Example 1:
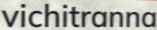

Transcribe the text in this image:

vichitranna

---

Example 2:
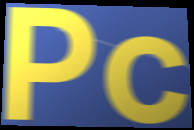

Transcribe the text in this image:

Pc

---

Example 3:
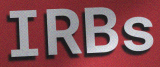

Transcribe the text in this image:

IRBs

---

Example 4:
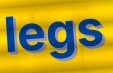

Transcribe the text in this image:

legs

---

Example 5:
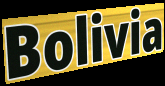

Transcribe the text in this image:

Bolivia